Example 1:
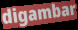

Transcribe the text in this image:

digambar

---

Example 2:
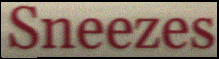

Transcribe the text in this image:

Sneezes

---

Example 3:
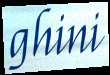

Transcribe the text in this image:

ghini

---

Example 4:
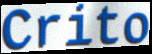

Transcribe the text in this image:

Crito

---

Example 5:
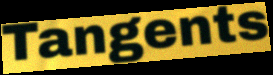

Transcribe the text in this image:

Tangents